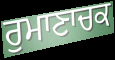
ਰੁਮਾਣਾਚਕ